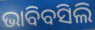
ଭାବିବସିଲି